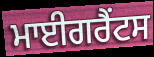
ਮਾਈਗਰੈਂਟਸ